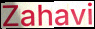
Zahavi